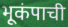
भूकंपाची